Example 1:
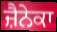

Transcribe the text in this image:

ਜ਼ੈਨੇਕਾ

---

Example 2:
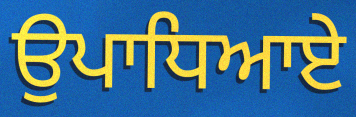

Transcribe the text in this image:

ਉਪਾਧਿਆਏ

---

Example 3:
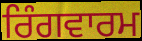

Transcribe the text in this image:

ਰਿੰਗਵਾਰਮ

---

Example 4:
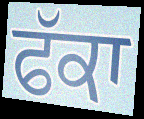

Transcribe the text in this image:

ਫੱਕਾ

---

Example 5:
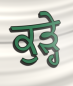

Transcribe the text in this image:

ਕੁੜ੍ਹੇ